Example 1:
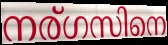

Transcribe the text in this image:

നര്ഗസിനെ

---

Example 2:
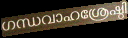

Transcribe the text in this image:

ഗന്ധവാഹശ്രേഷ്ഠി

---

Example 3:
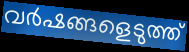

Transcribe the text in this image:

വർഷങ്ങളെടുത്ത്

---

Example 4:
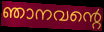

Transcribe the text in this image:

ഞാനവന്റെ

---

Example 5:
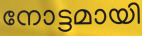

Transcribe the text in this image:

നോട്ടമായി